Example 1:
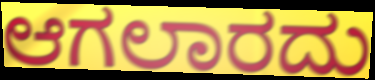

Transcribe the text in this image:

ಆಗಲಾರದು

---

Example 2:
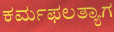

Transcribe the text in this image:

ಕರ್ಮಫಲತ್ಯಾಗ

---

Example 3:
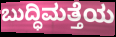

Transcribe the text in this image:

ಬುದ್ಧಿಮತ್ತೆಯ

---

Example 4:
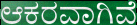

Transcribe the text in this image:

ಆಕರವಾಗಿವೆ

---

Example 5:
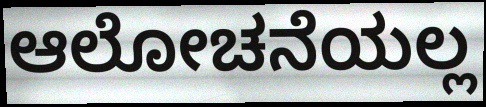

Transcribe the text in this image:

ಆಲೋಚನೆಯಲ್ಲ